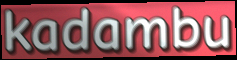
kadambu